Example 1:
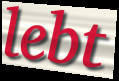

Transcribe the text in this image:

lebt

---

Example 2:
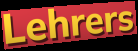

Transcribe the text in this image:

Lehrers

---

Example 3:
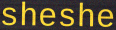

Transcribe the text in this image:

sheshe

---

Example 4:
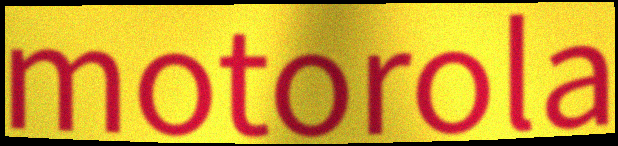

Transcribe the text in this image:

motorola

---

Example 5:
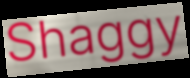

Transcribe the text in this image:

Shaggy